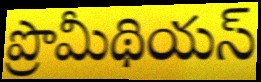
ప్రొమీథియస్